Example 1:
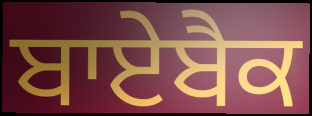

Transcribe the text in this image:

ਬਾਏਬੈਕ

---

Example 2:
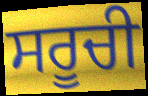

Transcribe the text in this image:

ਸਰੂਚੀ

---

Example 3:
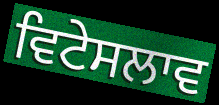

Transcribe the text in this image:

ਵਿਟੇਸਲਾਵ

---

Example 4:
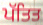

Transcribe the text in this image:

ਪੱਤਿਤ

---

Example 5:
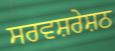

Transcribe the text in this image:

ਸਰਵਸ਼ਰੇਸ਼ਠ